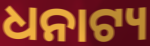
ଧନାଟ୍ୟ